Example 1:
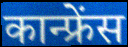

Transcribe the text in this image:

कान्फ्रेंस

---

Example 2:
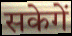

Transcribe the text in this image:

सकेगें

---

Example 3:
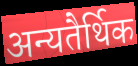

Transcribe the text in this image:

अन्यतैर्थिक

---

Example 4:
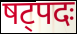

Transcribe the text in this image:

षट्पदः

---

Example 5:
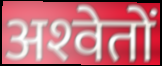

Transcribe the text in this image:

अश्‍वेतों